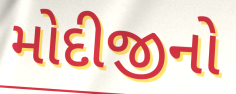
મોદીજીનો